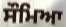
ਸੌਮਿਆ